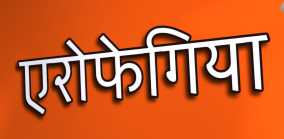
एरोफेगिया